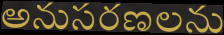
అనుసరణలను